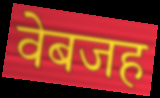
वेबजह